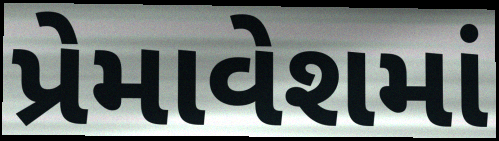
પ્રેમાવેશમાં